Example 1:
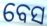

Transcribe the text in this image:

ବେସ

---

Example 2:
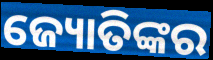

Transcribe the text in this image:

ଜ୍ୟୋତିଙ୍କର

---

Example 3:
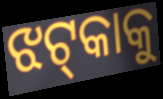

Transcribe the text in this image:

ଝଟ୍‌କାକୁ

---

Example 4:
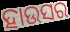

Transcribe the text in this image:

ହାଉସର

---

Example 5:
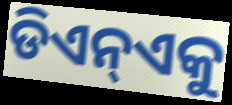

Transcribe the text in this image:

ଡିଏନ୍ଏକୁ